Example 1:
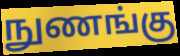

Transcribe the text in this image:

நுணங்கு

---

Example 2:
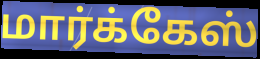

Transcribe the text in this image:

மார்க்கேஸ்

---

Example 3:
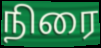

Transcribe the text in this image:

நிரை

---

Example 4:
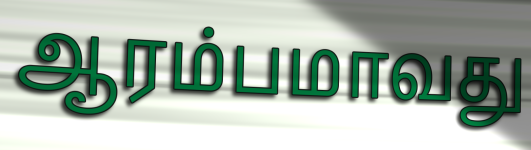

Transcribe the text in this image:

ஆரம்பமாவது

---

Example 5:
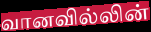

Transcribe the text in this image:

வானவில்லின்